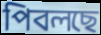
পিবলছে